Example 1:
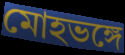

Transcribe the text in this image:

মোহভঙ্গে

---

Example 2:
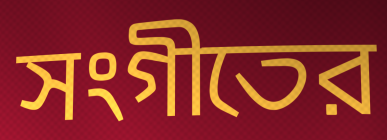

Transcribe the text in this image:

সংগীতের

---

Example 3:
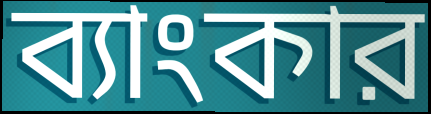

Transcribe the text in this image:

ব্যাংকার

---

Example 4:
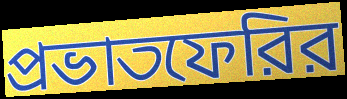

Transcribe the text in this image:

প্রভাতফেরির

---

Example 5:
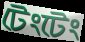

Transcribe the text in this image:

টেংটেং